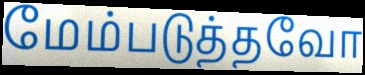
மேம்படுத்தவோ